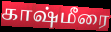
காஷ்மீரை